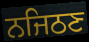
ਨਜਿਠਣ